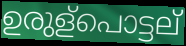
ഉരുള്പൊട്ടല്